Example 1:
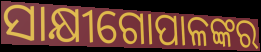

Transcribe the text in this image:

ସାକ୍ଷୀଗୋପାଳଙ୍କର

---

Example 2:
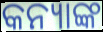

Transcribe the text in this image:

କନ୍ୟାଙ୍କ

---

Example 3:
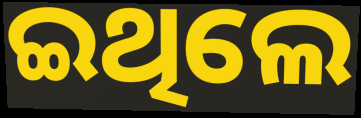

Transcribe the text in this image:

ଇଥିଲେ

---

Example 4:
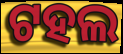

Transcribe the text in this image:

ଟହଲ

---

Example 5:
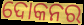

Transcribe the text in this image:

ଦୋକନର